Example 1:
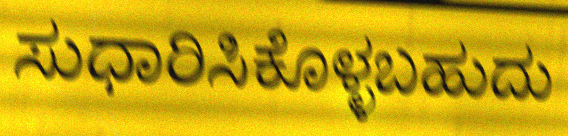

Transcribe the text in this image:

ಸುಧಾರಿಸಿಕೊಳ್ಳಬಹುದು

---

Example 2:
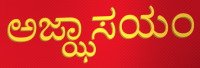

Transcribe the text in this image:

ಅಜ್ಝಾಸಯಂ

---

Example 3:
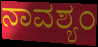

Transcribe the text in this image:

ನಾವಶ್ಯಂ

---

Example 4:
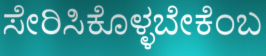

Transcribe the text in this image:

ಸೇರಿಸಿಕೊಳ್ಳಬೇಕೆಂಬ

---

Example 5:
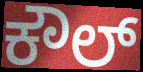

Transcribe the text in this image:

ಕೌಲ್